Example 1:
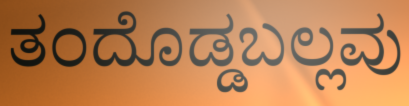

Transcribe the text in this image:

ತಂದೊಡ್ಡಬಲ್ಲವು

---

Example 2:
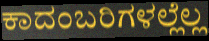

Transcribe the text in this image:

ಕಾದಂಬರಿಗಳಲ್ಲೆಲ್ಲ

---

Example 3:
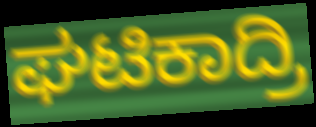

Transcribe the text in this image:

ಘಟಿಕಾದ್ರಿ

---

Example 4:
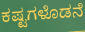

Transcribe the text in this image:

ಕಷ್ಟಗಳೊಡನೆ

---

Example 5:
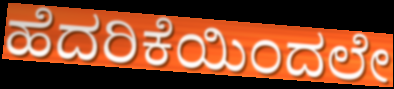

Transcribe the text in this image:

ಹೆದರಿಕೆಯಿಂದಲೇ